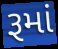
રૂમાં